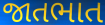
જાતભાત